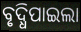
ବୃଦ୍ଧିପାଇଲା